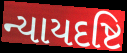
ન્યાયદષ્ટિ